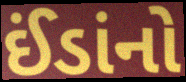
ઈંડાંનો